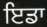
ਇਡਾ